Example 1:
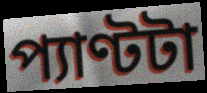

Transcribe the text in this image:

প্যাণ্টটা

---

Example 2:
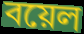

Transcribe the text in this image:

বয়েল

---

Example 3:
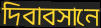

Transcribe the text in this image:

দিবাবসানে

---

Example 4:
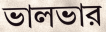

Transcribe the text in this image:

ভালভার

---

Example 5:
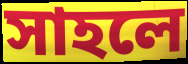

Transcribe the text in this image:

সাহলে